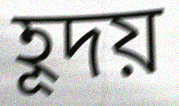
হূদয়